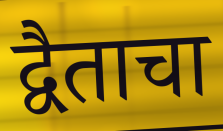
द्वैताचा